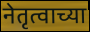
नेतृत्वाच्या